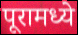
पूरामध्ये